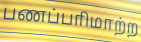
பணப்பரிமாற்ற